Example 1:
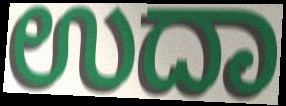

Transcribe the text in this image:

ಉದಾ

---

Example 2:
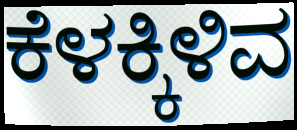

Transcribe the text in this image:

ಕೆಳಕ್ಕಿಳಿವ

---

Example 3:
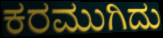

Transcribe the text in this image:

ಕರಮುಗಿದು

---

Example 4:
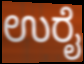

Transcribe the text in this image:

ಉರೈ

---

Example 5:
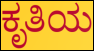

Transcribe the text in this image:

ಕೃತಿಯ